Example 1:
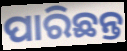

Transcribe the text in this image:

ପାରିଛନ୍ତ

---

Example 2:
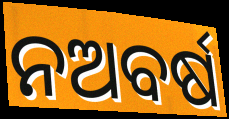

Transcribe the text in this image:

ନଅବର୍ଷ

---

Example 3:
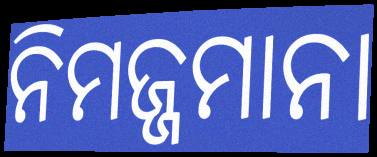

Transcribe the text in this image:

ନିମଜ୍ଜମାନା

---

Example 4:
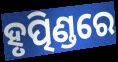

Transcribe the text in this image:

ହୃତ୍ପିଣ୍ଡରେ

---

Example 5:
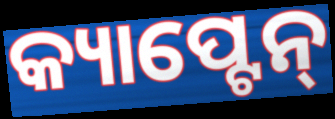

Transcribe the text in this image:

କ୍ୟାପ୍ଟେନ୍